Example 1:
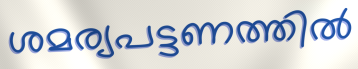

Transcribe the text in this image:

ശമര്യപട്ടണത്തിൽ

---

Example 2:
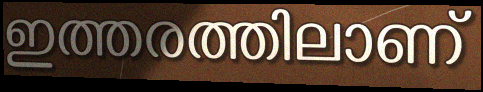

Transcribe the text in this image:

ഇത്തരത്തിലാണ്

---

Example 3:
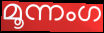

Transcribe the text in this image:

മൂന്നംഗ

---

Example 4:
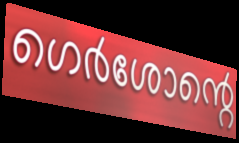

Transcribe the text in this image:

ഗെർശോന്റെ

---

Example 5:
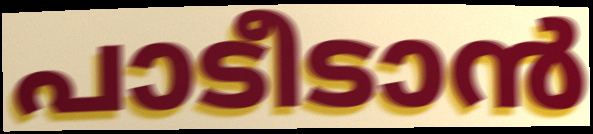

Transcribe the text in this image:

പാടീടാൻ